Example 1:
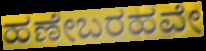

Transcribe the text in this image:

ಹಣೇಬರಹವೇ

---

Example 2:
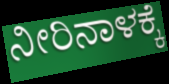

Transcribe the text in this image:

ನೀರಿನಾಳಕ್ಕೆ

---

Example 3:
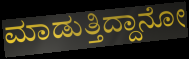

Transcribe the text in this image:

ಮಾಡುತ್ತಿದ್ದಾನೋ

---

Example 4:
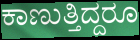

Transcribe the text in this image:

ಕಾಣುತ್ತಿದ್ದರೂ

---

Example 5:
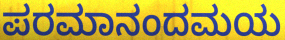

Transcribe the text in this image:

ಪರಮಾನಂದಮಯ